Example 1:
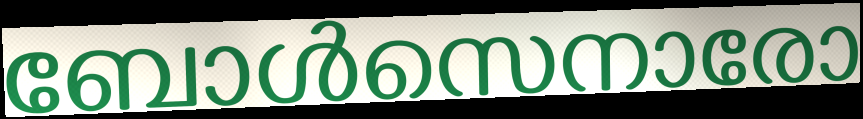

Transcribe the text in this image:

ബോൾസെനാരോ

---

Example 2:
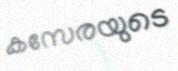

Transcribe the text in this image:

കസേരയുടെ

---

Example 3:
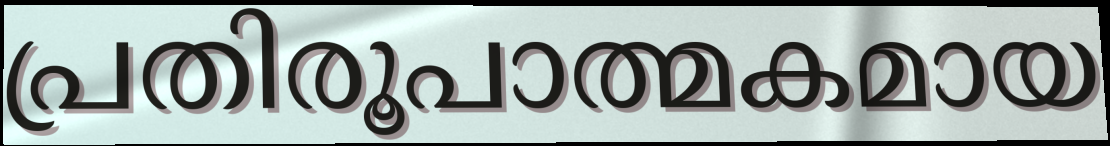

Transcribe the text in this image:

പ്രതിരൂപാത്മകമായ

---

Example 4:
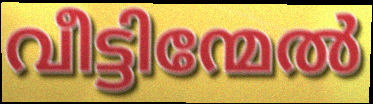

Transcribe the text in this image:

വീട്ടിന്മേൽ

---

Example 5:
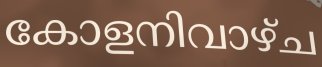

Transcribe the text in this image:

കോളനിവാഴ്ച